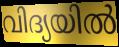
വിദ്യയിൽ